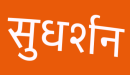
सुधर्शन